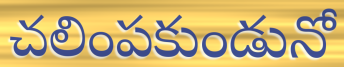
చలింపకుండునో